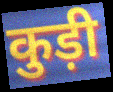
कुड़ी